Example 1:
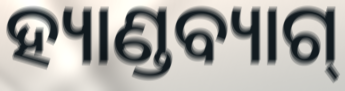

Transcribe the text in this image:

ହ୍ୟାଣ୍ଡବ୍ୟାଗ୍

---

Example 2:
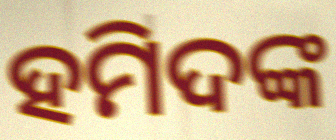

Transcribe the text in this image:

ହମିଦଙ୍କ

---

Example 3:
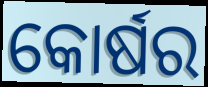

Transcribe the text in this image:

କୋର୍ଷର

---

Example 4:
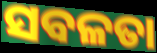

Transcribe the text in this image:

ସବଳତା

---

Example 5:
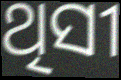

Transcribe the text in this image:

ଥିସୀ